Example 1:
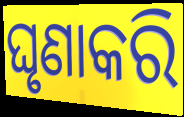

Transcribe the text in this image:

ଘୃଣାକରି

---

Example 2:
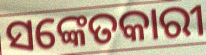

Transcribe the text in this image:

ସଙ୍କେତକାରୀ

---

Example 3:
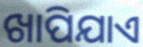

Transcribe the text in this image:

ଖାପିଯାଏ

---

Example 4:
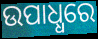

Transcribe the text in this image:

ଉପାଧ୍ଧରେ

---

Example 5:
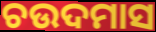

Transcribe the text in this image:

ଚଉଦମାସ